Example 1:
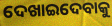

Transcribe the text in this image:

ଦେଖାଇଦେବାକୁ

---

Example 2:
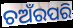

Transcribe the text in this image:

ଚଅଁରପରି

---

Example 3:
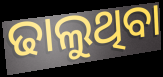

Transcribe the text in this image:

ଢାଲୁଥିବା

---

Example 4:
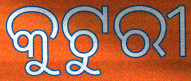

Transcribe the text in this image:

କୁଟୁରୀ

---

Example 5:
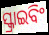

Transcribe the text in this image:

ସ୍କ୍ରାଇବିଂ